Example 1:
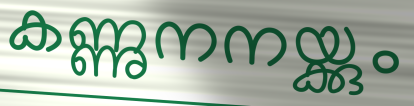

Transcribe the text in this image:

കണ്ണുനനയ്ക്കും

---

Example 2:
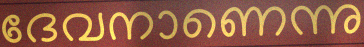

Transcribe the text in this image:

ദേവനാണെന്നു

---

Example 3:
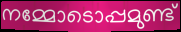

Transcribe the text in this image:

നമ്മോടൊപ്പമുണ്ട്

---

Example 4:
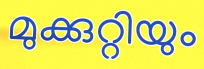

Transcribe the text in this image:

മുക്കുറ്റിയും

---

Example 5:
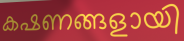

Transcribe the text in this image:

കഷണങ്ങളായി